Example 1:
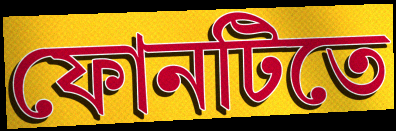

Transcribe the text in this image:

ফোনটিতে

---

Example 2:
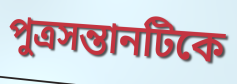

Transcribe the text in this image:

পুত্রসন্তানটিকে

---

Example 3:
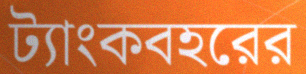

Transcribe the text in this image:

ট্যাংকবহরের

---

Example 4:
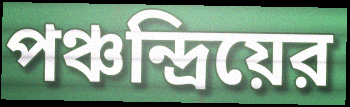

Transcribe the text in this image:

পঞ্চন্দ্রিয়ের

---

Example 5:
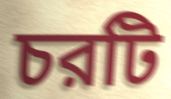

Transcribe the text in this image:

চরটি